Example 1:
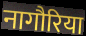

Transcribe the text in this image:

नागौरिया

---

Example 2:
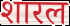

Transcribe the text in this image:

शारल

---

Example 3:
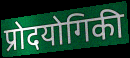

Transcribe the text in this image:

प्रोदयोगिकी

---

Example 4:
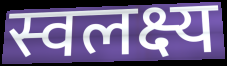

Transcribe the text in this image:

स्वलक्ष्य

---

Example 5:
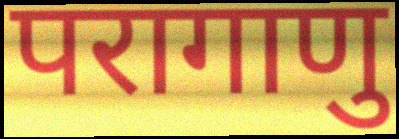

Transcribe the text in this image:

परागाणु